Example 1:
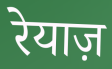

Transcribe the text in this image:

रेयाज़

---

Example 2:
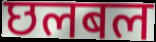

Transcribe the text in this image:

छलबल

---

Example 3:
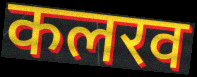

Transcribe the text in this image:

कलरव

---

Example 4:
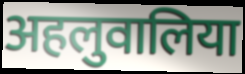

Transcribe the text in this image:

अहलुवालिया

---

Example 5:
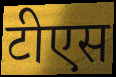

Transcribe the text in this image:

टीएस